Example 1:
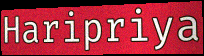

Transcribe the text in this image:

Haripriya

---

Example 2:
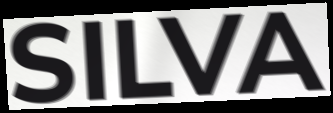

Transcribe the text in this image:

SILVA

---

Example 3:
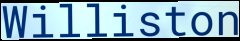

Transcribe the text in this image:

Williston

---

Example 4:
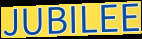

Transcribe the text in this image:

JUBILEE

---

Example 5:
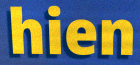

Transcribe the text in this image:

hien